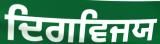
ਦਿਗਵਿਜਯ